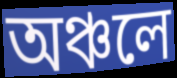
অঞ্চলে